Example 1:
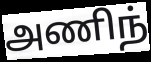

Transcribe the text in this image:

அணிந்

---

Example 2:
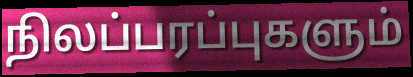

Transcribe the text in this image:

நிலப்பரப்புகளும்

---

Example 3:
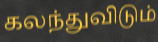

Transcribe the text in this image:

கலந்துவிடும்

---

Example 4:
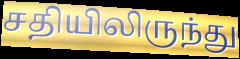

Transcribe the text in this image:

சதியிலிருந்து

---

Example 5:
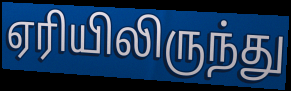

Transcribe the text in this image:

ஏரியிலிருந்து